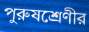
পুরুষশ্রেণীর